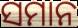
ସମାନ